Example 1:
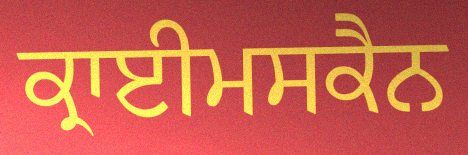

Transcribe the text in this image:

ਕ੍ਰਾਈਮਸਕੈਨ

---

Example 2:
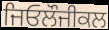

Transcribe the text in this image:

ਜਿਓਲੌਜੀਕਲ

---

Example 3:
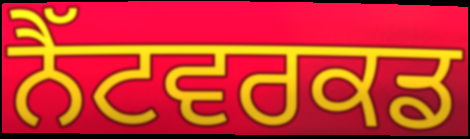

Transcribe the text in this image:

ਨੈੱਟਵਰਕਡ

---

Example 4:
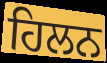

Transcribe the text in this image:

ਹਿਲਨ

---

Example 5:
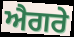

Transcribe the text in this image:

ਐਗਰੇ